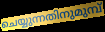
ചെയ്യുന്നതിനുമുമ്പ്